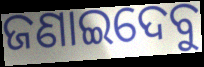
ଜଣାଇଦେବୁ